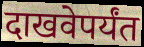
दाखवेपर्यंत